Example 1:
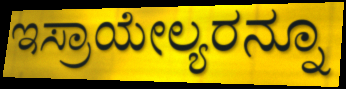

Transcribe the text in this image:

ಇಸ್ರಾಯೇಲ್ಯರನ್ನೂ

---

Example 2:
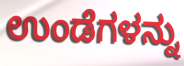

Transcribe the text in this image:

ಉಂಡೆಗಳನ್ನು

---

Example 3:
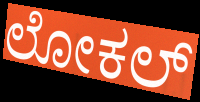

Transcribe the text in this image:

ಲೋಕಲ್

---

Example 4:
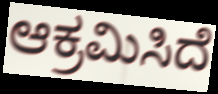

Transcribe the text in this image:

ಆಕ್ರಮಿಸಿದೆ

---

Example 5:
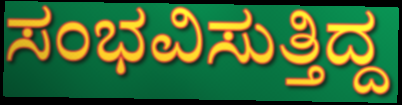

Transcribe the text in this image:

ಸಂಭವಿಸುತ್ತಿದ್ದ